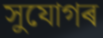
সুযোগৰ